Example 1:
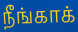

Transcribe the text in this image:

நீங்காக்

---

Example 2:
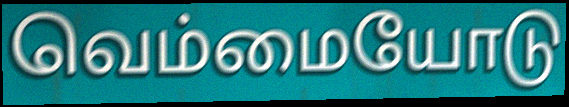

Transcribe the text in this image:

வெம்மையோடு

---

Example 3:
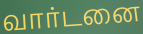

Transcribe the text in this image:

வார்டனை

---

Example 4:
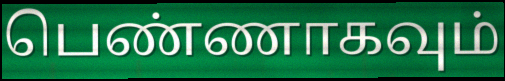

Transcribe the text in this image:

பெண்ணாகவும்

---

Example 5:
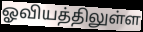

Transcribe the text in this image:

ஓவியத்திலுள்ள